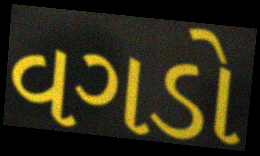
વગડો